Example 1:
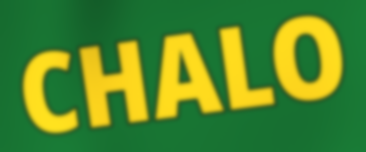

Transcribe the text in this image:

CHALO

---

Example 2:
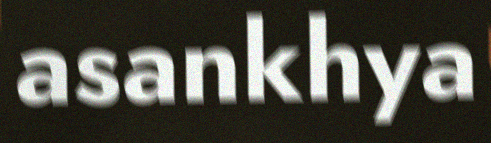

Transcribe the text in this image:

asankhya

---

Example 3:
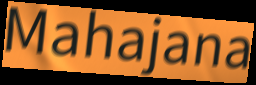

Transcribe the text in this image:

Mahajana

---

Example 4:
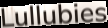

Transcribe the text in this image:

Lullubies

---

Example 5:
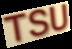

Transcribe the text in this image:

TSU